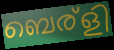
ബെര്ളി